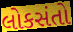
લોકસંતો